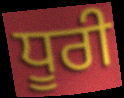
ਧੂਰੀ